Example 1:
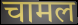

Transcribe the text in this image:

चामल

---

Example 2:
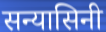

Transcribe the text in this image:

सन्यासिनी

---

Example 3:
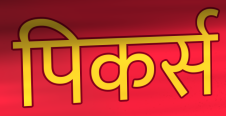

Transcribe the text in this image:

पिकर्स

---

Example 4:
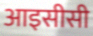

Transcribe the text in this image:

आइसीसी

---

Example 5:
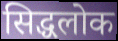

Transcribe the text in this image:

सिद्धलोक